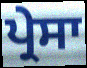
ਪ੍ਰੇਸਾ